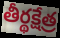
తీర్థక్షేత్ర